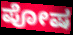
ಪೋಷ